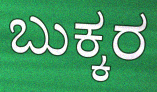
ಬುಕ್ಕರ